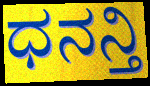
ಧನನ್ತಿ